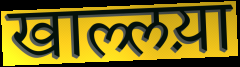
खाल्लय़ा